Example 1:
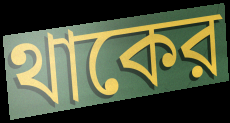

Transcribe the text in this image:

থাকের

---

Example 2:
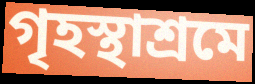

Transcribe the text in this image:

গৃহস্থাশ্রমে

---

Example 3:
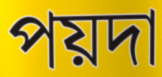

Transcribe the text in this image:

পয়দা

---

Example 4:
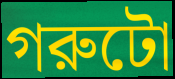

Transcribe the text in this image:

গরুটো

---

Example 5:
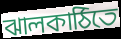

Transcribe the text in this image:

ঝালকাঠিতে